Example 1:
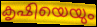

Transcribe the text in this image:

കൃഷിയെയും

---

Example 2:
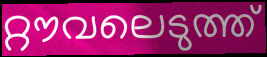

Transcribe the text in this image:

റ്റൗവലെടുത്ത്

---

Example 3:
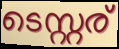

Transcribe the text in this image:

ടെസ്റ്റര്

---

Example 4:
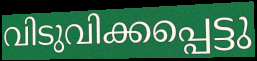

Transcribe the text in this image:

വിടുവിക്കപ്പെട്ടു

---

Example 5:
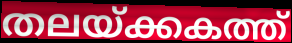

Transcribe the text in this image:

തലയ്ക്കകത്ത്